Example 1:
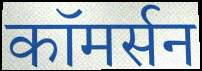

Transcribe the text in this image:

कॉमर्सन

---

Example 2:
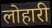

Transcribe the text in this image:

लोहारी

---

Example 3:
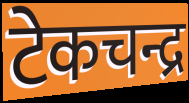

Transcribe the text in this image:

टेकचन्द्र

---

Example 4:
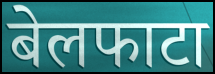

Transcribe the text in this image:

बेलफाटा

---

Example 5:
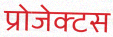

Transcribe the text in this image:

प्रोजेक्‍टस